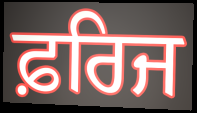
ਫ਼ਰਿਜ